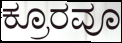
ಕ್ರೂರವೂ